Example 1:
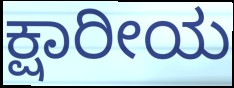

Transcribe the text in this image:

ಕ್ಷಾರೀಯ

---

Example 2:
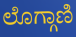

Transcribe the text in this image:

ಲೊಗ್ಗಾಣಿ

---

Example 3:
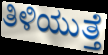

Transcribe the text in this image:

ತಿಳಿಯುತ್ತೆ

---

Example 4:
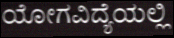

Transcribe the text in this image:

ಯೋಗವಿದ್ಯೆಯಲ್ಲಿ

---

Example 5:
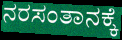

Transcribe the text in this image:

ನರಸಂತಾನಕ್ಕೆ